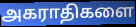
அகராதிகளை